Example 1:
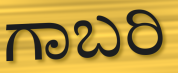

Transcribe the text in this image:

ಗಾಬರಿ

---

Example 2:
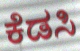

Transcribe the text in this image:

ಕೆಡಸಿ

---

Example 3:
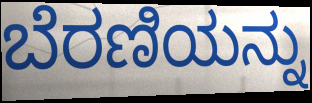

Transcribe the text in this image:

ಬೆರಣಿಯನ್ನು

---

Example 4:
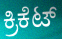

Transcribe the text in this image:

ಕ್ರಿಕೆಟ್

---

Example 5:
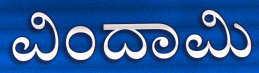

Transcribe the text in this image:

ವಿಂದಾಮಿ